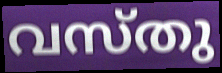
വസ്തു